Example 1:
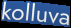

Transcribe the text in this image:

kolluva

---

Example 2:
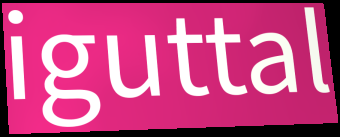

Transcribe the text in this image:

iguttal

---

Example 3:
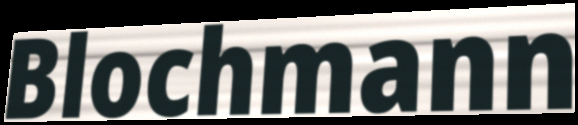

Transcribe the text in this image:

Blochmann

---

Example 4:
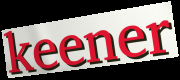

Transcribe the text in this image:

keener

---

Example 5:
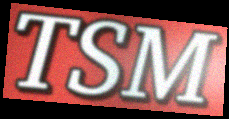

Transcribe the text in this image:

TSM